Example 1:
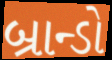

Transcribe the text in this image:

બ્રાન્ડો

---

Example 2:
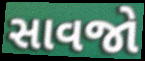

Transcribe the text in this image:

સાવજો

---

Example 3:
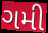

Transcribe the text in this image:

ગમી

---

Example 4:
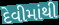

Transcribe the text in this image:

દેવીમાંથી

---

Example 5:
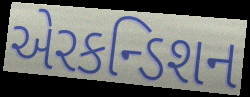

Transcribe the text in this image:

એરકન્ડિશન